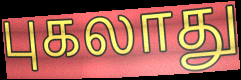
புகலாது